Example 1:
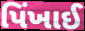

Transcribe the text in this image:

પિંખાઈ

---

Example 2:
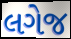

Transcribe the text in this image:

લગેજ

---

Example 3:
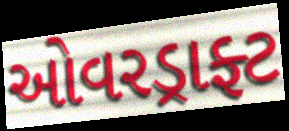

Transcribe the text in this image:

ઓવરડ્રાફ્ટ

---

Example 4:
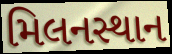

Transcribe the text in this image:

મિલનસ્થાન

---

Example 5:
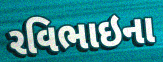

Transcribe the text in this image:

રવિભાઇના